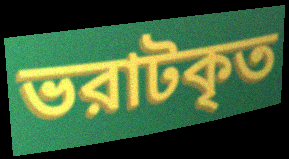
ভরাটকৃত